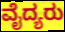
ವೈದ್ಯರು